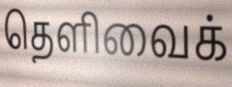
தெளிவைக்